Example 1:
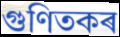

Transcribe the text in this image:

গুণিতকৰ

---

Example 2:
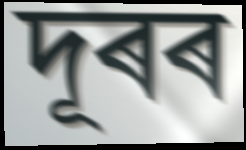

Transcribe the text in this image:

দূৰৰ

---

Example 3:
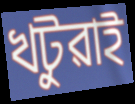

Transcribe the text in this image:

খটুৱাই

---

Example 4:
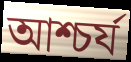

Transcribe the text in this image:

আশ্চৰ্য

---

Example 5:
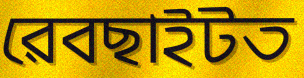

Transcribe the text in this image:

ৱেবছাইটত